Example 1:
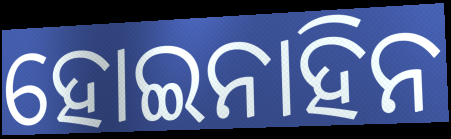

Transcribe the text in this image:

ହୋଇନାହିନ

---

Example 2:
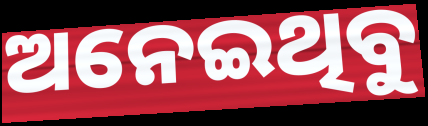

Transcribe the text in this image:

ଅନେଇଥିବୁ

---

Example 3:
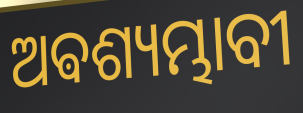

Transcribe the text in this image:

ଅଵଶ୍ୟମ୍ଭାବୀ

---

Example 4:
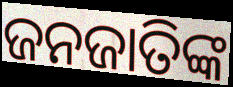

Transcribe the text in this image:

ଜନଜାତିଙ୍କ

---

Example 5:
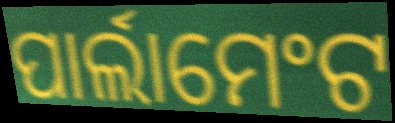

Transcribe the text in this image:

ପାର୍ଲାମେଂଟ